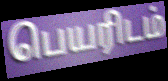
பெயரிடம்